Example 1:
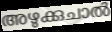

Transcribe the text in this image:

അഴുക്കുചാൽ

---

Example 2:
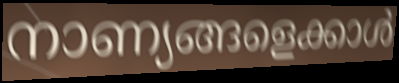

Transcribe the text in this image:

നാണ്യങ്ങളെക്കാൾ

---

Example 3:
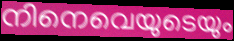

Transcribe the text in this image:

നിനെവെയുടെയും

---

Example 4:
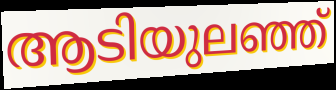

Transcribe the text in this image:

ആടിയുലഞ്ഞ്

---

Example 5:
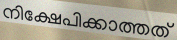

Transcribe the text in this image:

നിക്ഷേപിക്കാത്തത്